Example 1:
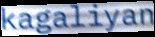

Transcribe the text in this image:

kagaliyan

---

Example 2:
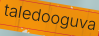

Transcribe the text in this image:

taledooguva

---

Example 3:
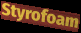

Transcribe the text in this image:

Styrofoam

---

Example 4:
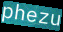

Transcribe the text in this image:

phezu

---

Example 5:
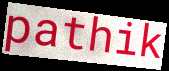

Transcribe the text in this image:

pathik